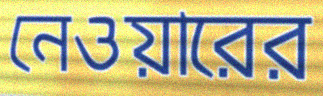
নেওয়ারের